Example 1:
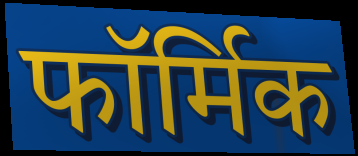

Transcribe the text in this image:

फॉर्मिक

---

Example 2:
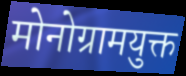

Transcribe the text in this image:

मोनोग्रामयुक्त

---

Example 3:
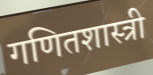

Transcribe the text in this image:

गणितशास्त्री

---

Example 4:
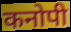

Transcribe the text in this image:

कनोपी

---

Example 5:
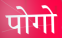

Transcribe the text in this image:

पोगो